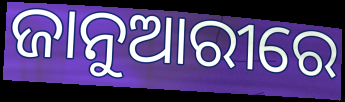
ଜାନୁଆରୀରେ